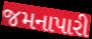
જમનાપારી